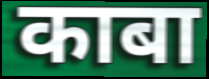
काबा